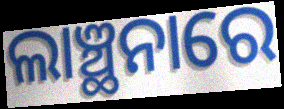
ଲାଞ୍ଛନାରେ